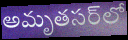
అమృతసర్‌లో